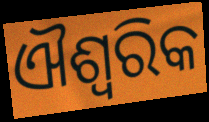
ଐଶ୍ୱରିକ